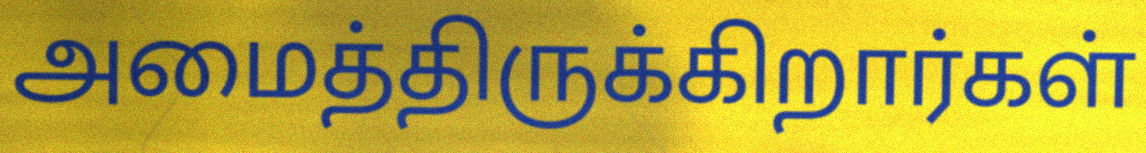
அமைத்திருக்கிறார்கள்